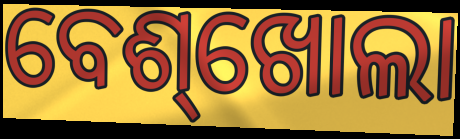
ବେଶ୍‌ଖୋଲା